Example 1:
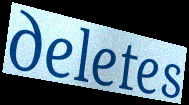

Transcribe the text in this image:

deletes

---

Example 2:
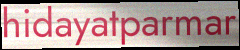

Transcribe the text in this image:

hidayatparmar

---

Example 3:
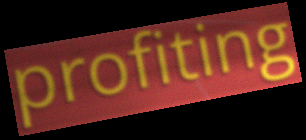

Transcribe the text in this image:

profiting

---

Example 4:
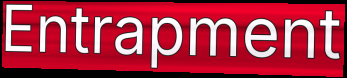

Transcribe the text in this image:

Entrapment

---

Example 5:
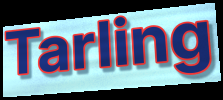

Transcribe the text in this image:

Tarling